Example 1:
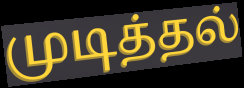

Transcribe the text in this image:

முடித்தல்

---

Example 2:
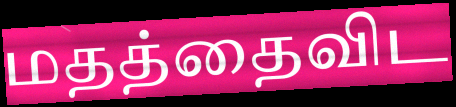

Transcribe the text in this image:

மதத்தைவிட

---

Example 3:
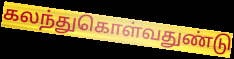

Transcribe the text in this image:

கலந்துகொள்வதுண்டு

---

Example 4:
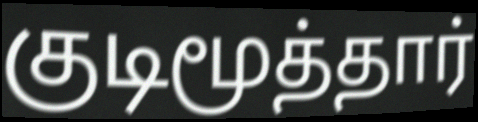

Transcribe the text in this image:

குடிமூத்தார்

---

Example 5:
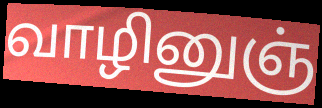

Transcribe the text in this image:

வாழினுஞ்